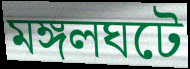
মঙ্গলঘটে